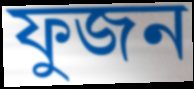
ফুজন